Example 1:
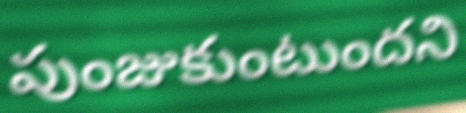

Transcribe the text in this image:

పుంజుకుంటుందని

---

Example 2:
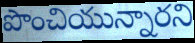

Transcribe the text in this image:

పొంచియున్నారని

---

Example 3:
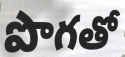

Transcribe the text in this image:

పొగతో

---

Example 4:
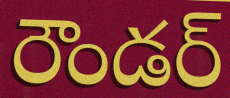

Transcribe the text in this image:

రౌండర్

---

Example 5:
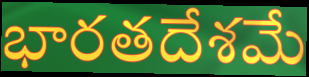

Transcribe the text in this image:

భారతదేశమే